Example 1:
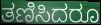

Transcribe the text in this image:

ತಣಿಸಿದರೂ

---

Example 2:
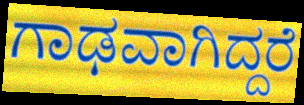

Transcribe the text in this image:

ಗಾಢವಾಗಿದ್ದರೆ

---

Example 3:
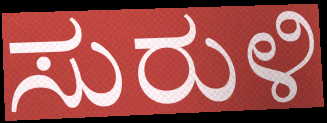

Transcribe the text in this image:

ಸುರುಳಿ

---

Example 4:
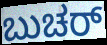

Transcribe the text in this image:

ಬುಚರ್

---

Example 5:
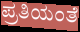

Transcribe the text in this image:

ಪ್ರತಿಯಂತೆ